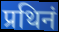
प्रथिनं